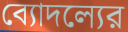
ব্যোদল্যের